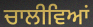
ਚਾਲੀਵਿਆਂ